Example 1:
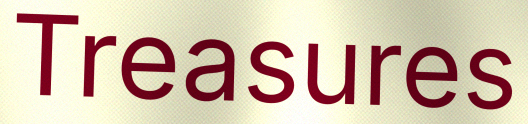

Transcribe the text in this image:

Treasures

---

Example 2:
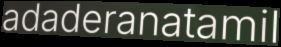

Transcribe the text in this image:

adaderanatamil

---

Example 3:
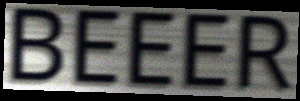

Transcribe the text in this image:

BEEER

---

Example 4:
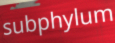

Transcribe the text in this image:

subphylum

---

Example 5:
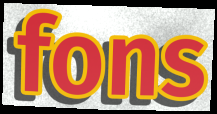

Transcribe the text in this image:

fons